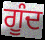
ਗੂੰਦ